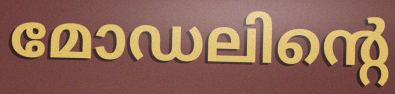
മോഡലിന്റെ